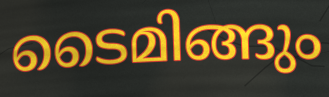
ടൈമിങ്ങും